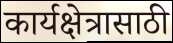
कार्यक्षेत्रासाठी